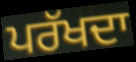
ਪਰੱਖਦਾ